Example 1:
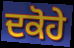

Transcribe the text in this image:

ਦਕੋਹੇ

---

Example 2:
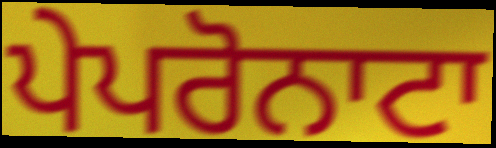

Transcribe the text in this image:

ਪੇਪਰੋਨਾਟਾ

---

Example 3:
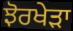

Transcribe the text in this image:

ਝੋਰਖੇੜਾ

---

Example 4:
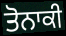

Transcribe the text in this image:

ਤੋਨਾਕੀ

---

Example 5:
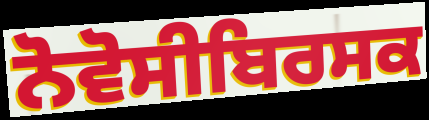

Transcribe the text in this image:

ਨੋਵੋਸੀਬਿਰਸਕ